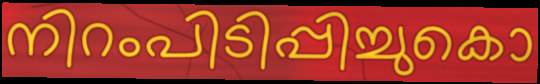
നിറംപിടിപ്പിച്ചുകൊ